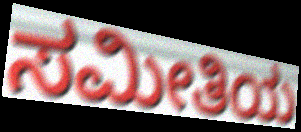
ಸಮೀತಿಯ